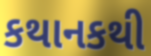
કથાનકથી